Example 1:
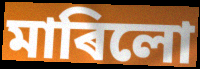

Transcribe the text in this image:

মাৰিলো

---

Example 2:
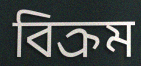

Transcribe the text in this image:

বিক্ৰম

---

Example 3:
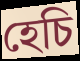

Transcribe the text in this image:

হেচি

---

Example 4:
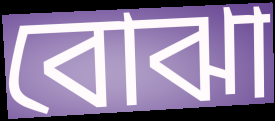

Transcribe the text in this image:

বোঝা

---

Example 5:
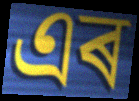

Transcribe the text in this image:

এৰ